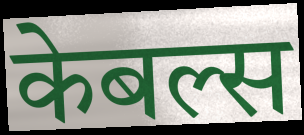
केबल्स